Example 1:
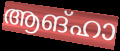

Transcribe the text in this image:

ആങ്ഹാ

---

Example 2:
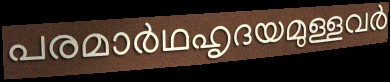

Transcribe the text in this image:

പരമാർഥഹൃദയമുള്ളവർ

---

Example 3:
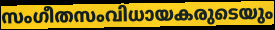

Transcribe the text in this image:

സംഗീതസംവിധായകരുടെയും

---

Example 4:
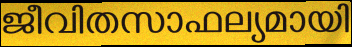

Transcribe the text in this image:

ജീവിതസാഫല്യമായി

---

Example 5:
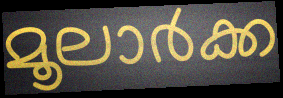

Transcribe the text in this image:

മൂലാർക്ക